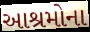
આશ્રમોના